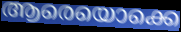
ആരെയൊക്കെ